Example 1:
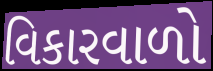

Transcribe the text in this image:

વિકારવાળો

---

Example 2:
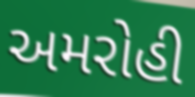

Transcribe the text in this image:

અમરોહી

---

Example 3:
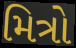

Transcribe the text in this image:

મિત્રો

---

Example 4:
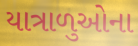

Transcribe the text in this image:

યાત્રાળુઓના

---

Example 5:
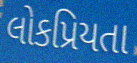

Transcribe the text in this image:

લોકપ્રિયતા